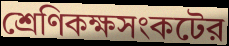
শ্রেণিকক্ষসংকটের